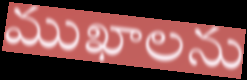
ముఖాలను